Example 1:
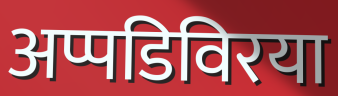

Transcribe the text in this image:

अप्पडिविरया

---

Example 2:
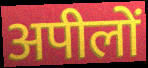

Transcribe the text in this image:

अपीलों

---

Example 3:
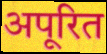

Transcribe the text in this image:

अपूरित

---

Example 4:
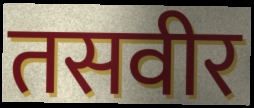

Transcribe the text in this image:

तसवीर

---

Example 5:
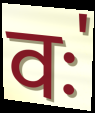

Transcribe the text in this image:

वः॑